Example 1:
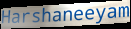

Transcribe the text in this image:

Harshaneeyam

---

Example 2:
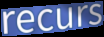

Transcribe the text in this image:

recurs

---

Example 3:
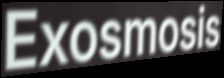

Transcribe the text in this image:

Exosmosis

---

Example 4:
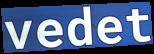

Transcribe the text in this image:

vedet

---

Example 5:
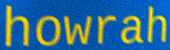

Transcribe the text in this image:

howrah